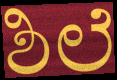
ಶಿಲೆ